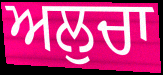
ਅਲੁਚਾ